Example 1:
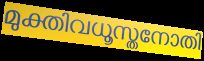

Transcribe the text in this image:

മുക്തിവധൂസ്തനോതി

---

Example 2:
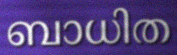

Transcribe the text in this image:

ബാധിത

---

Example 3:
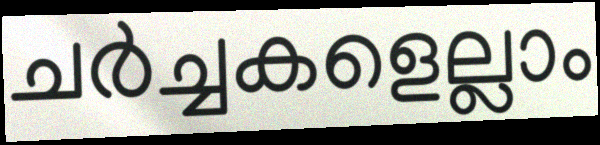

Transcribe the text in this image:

ചർച്ചകളെല്ലാം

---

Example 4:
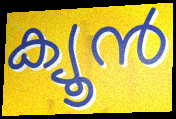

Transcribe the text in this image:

ക്യൂൻ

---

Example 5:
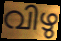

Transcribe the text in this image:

വിഴു